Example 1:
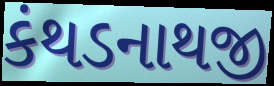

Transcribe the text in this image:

કંથડનાથજી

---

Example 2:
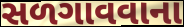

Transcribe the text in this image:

સળગાવવાના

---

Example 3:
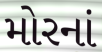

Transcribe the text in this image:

મોરનાં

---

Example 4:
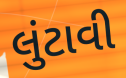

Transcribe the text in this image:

લુંટાવી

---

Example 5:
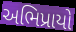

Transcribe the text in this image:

અભિપ્રાયો